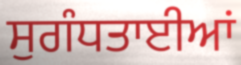
ਸੁਗੰਧਤਾਈਆਂ